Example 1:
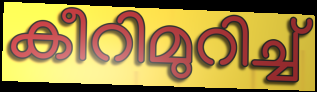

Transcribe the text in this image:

കീറിമുറിച്ച്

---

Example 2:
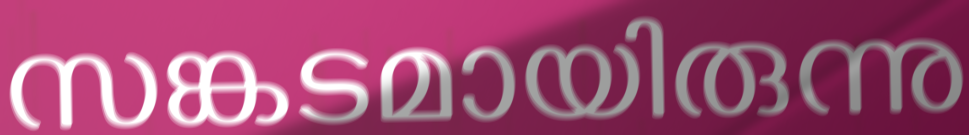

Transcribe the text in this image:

സങ്കടമായിരുന്നു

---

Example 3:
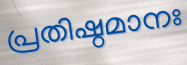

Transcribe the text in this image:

പ്രതിഷ്ഠമാനഃ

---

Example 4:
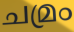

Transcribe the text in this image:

ചമ്രം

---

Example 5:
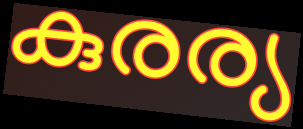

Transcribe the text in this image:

കുരര്യ